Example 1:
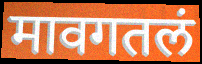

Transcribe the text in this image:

मावगतलं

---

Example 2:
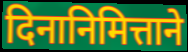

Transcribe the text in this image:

दिनानिमित्ताने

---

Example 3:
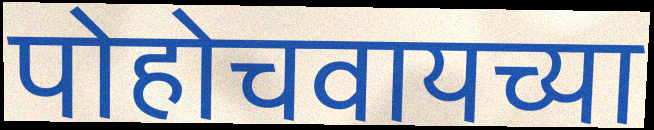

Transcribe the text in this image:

पोहोचवायच्या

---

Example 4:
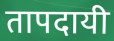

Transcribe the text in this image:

तापदायी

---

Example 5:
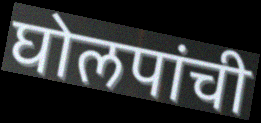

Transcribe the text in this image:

घोलपांची